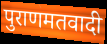
पुराणमतवादी